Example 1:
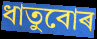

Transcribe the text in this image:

ধাতুবোৰ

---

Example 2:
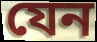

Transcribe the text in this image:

যেন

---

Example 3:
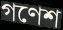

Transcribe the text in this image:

গণেশ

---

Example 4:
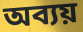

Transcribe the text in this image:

অব্যয়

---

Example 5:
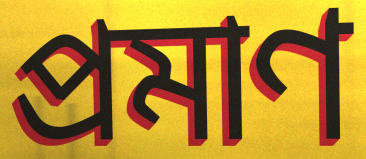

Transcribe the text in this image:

প্ৰমাণ